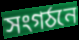
সংগঠনে